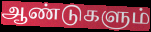
ஆண்டுகளும்